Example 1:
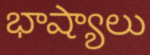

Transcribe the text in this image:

భాష్యాలు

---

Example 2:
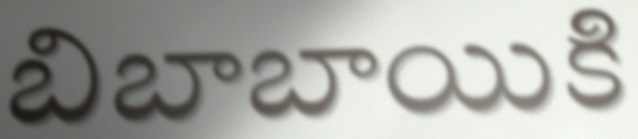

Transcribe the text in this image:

బిబాబాయికి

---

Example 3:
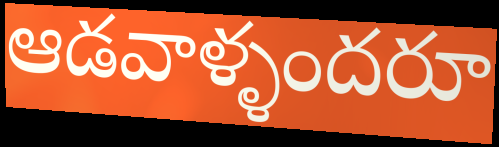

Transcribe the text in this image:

ఆడవాళ్ళందరూ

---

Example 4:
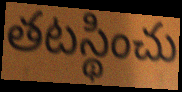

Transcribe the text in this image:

తటస్థించు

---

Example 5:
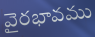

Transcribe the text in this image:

వైరభావము